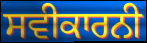
ਸਵੀਕਾਰਨੀ